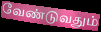
வேண்டுவதும்